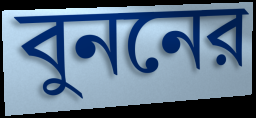
বুননের